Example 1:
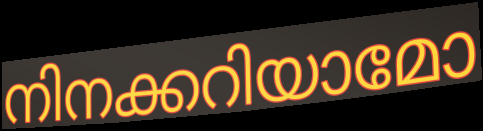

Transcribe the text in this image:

നിനക്കറിയാമോ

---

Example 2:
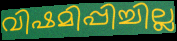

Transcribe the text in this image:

വിഷമിപ്പിച്ചില്ല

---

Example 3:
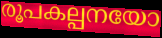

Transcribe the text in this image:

രൂപകല്പനയോ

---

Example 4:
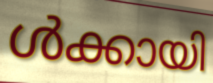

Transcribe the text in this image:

ൾക്കായി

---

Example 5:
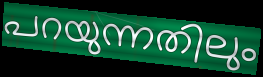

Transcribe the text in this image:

പറയുന്നതിലും